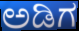
ಅಡಿಗ